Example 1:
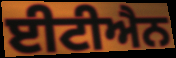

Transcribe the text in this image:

ਈਟੀਐਨ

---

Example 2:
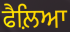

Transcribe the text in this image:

ਫੈਲ਼ਿਆ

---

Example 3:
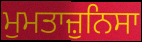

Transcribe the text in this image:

ਮੁਮਤਾਜ਼ੁਨਿਸਾ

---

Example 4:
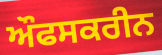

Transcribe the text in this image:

ਔਫਸਕਰੀਨ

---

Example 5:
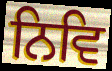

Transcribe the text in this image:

ਨਿਵਿ